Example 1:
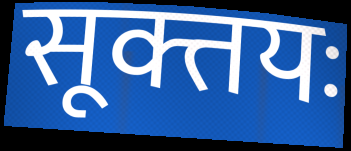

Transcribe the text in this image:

सूक्तयः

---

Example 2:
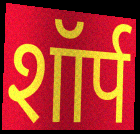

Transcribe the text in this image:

शॉर्प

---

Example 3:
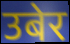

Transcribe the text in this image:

उबेर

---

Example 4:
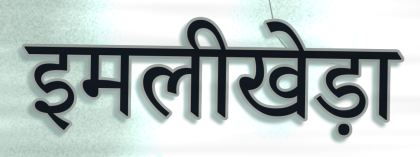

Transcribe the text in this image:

इमलीखेड़ा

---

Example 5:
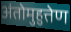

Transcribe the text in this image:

अंतोमुहुत्तेण